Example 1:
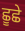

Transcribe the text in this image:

ਛੂਛੇ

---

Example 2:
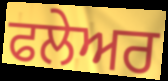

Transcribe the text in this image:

ਫਲੇਅਰ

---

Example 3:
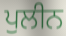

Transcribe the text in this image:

ਪੁਲੀਨ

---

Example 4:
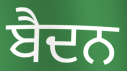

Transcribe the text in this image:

ਬੈਦਨ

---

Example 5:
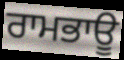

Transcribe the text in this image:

ਰਾਮਭਾਊ